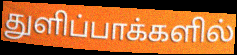
துளிப்பாக்களில்